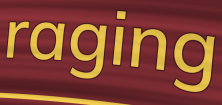
raging